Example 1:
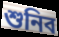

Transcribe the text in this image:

শুনিব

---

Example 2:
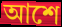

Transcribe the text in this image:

আশে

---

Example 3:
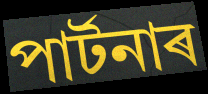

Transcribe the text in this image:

পাৰ্টনাৰ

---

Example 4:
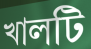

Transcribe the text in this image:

খালটি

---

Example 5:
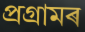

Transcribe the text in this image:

প্ৰগ্ৰামৰ